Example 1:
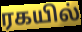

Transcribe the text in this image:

ரகயில்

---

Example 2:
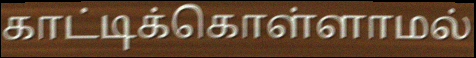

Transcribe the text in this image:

காட்டிக்கொள்ளாமல்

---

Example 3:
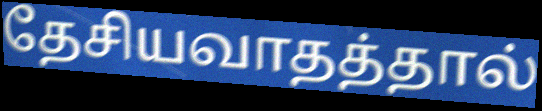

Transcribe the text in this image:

தேசியவாதத்தால்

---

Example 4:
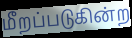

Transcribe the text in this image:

மீறப்படுகின்ற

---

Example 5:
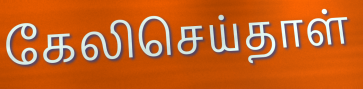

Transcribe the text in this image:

கேலிசெய்தாள்